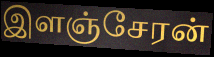
இளஞ்சேரன்